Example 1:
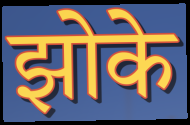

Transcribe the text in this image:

झोके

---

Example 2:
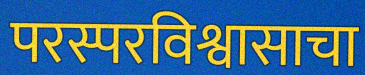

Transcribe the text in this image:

परस्परविश्वासाचा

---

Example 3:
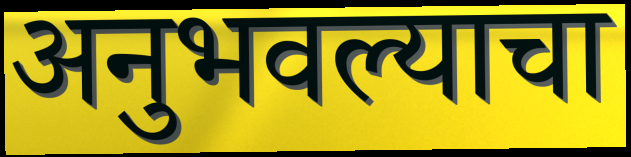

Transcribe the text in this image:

अनुभवल्याचा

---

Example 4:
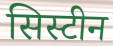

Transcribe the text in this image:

सिस्टीन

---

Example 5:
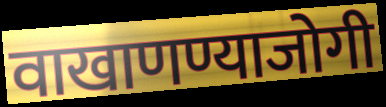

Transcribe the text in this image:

वाखाणण्याजोगी